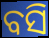
ବସି